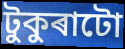
টুকুৰাটো